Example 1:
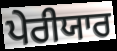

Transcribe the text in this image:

ਪੇਰੀਯਾਰ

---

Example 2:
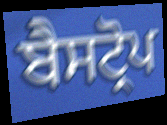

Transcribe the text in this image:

ਬੈਸਟ੍ਰੋਪ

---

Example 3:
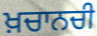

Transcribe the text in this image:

ਖ਼ਚਾਨਚੀ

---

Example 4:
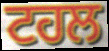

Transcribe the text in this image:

ਟਹਲ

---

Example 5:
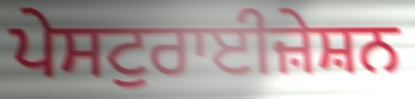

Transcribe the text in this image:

ਪੇਸਟੁਰਾਈਜ਼ੇਸ਼ਨ